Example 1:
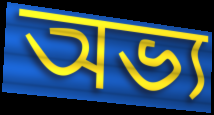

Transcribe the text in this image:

অভ্য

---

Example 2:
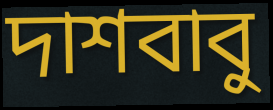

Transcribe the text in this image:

দাশবাবু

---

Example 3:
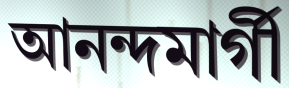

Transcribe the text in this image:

আনন্দমার্গী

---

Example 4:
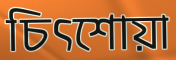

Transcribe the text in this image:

চিৎশোয়া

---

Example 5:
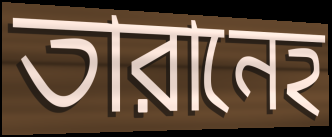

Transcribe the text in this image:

তারানেহ